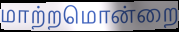
மாற்றமொன்றை